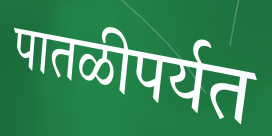
पातळीपर्यत